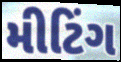
મીટિંગ